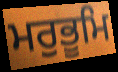
ਮਰੁਭੂਮਿ